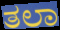
ತಲಾ